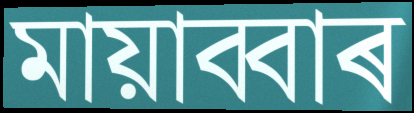
মায়াব্বাৰ